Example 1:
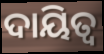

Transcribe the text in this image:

ଦାୟିତ୍ବ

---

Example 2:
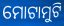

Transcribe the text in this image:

ମୋଟାମୁଟି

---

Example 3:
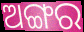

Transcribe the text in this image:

ଅଙ୍ଗର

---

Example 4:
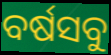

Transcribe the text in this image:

ବର୍ଷସବୁ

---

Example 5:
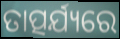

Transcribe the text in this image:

ତାତ୍ପର୍ଯ୍ୟରେ